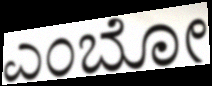
ಎಂಬೋ